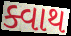
ક્વાથ